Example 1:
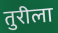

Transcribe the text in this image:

तुरीला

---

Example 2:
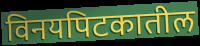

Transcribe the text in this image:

विनयपिटकातील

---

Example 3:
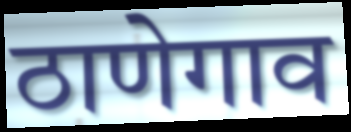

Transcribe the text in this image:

ठाणेगाव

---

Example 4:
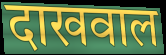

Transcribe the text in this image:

दाखवाल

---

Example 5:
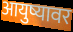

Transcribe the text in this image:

आयुष्यावर